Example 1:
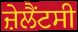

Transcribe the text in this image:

ਜ਼ੇਲੈਂਟਸੀ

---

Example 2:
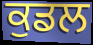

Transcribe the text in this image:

ਕੁਡਲ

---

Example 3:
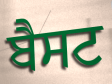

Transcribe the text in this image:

ਬੈਸਟ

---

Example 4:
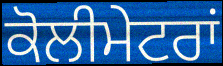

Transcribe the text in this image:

ਕੋਲੀਮੇਟਰਾਂ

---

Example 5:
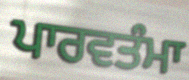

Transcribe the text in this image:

ਪਾਰਵਤੰਮਾ